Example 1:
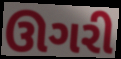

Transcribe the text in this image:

ઊગરી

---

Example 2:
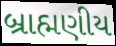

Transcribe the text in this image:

બ્રાહ્મણીય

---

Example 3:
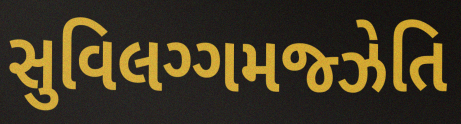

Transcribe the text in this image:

સુવિલગ્ગમજ્ઝેતિ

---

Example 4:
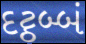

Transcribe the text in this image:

દટ્ઠબ્બં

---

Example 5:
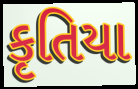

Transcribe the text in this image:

કૃતિયા